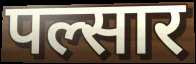
पल्सार